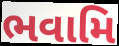
ભવામિ